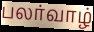
பலர்வாழ்